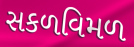
સકળવિમળ